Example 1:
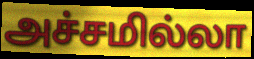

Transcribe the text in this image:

அச்சமில்லா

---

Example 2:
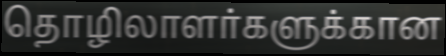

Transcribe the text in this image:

தொழிலாளர்களுக்கான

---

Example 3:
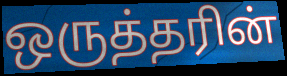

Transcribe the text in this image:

ஒருத்தரின்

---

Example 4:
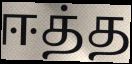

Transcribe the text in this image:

ஈத்த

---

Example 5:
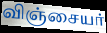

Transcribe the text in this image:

விஞ்சையர்